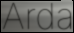
Arda